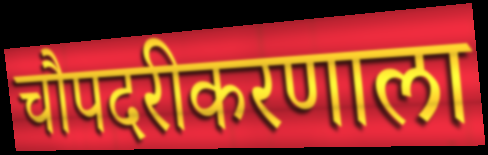
चौपदरीकरणाला